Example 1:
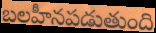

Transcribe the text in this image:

బలహీనపడుతుంది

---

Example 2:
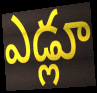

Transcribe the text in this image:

ఎడ్లూ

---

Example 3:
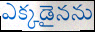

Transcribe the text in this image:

ఎక్కడైనను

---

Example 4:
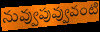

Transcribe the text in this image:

నువ్వుపువ్వువంటి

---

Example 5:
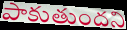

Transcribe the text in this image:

పాకుతుందని